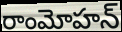
రాంమోహన్